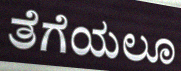
ತೆಗೆಯಲೂ